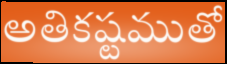
అతికష్టముతో